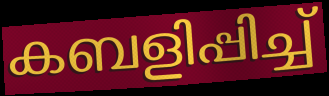
കബളിപ്പിച്ച്